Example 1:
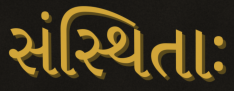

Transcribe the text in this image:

સંસ્થિતાઃ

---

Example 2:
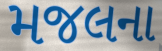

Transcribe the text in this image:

મજલના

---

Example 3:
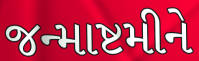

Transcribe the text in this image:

જન્માષ્ટમીને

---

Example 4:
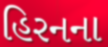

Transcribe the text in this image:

હિરનના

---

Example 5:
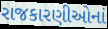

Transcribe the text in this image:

રાજકારણીઓનાં